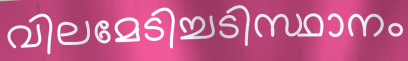
വിലമേടിച്ചടിസ്ഥാനം